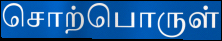
சொற்பொருள்